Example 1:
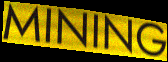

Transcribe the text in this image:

MINING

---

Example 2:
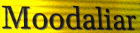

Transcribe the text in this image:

Moodaliar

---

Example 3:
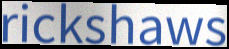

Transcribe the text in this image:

rickshaws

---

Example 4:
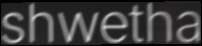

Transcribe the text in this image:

shwetha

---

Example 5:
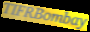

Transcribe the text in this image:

TIFRBombay